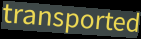
transported